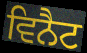
ਵਿਨੈਟ